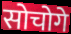
सोचोगे